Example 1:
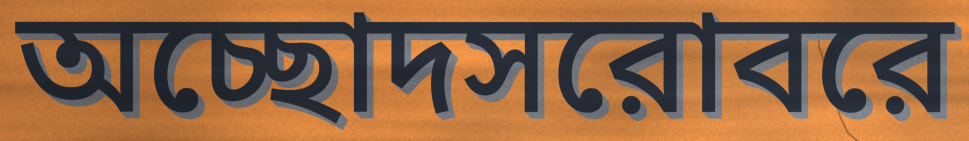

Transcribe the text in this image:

অচ্ছোদসরোবরে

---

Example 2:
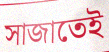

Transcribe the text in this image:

সাজাতেই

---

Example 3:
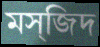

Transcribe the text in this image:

মস্জিদ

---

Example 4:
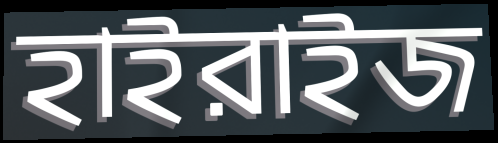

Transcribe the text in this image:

হাইরাইজ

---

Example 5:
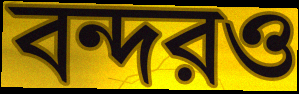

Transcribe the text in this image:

বন্দরও